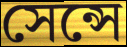
সেন্সে